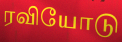
ரவியோடு